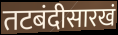
तटबंदीसारखं